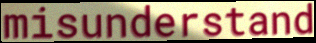
misunderstand